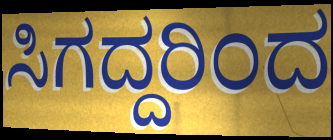
ಸಿಗದ್ದರಿಂದ